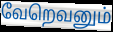
வேறெவனும்